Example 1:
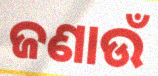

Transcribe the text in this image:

ଜଣାଉଁ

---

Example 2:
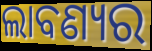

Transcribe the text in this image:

ଲାବଣ୍ୟର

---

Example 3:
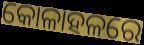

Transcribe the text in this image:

କୋଳାହଳରେ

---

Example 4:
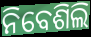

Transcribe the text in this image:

ନିବେଶିଲି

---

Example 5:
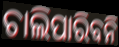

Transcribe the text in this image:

ଚାଲିପାରିବନି